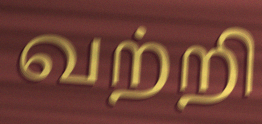
வற்றி